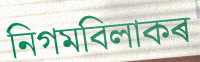
নিগমবিলাকৰ